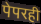
पेपरही